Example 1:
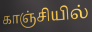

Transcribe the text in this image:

காஞ்சியில்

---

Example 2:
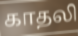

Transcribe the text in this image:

காதலி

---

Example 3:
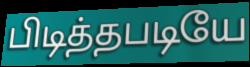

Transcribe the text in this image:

பிடித்தபடியே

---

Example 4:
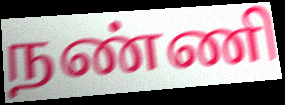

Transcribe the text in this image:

நண்ணி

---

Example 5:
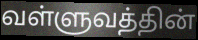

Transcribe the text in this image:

வள்ளுவத்தின்